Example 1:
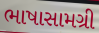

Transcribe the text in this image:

ભાષાસામગ્રી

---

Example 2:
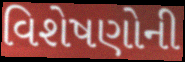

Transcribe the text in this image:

વિશેષણોની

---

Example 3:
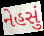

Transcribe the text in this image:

નેહસું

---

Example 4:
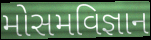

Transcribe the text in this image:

મોસમવિજ્ઞાન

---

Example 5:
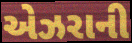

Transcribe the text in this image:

એઝરાની